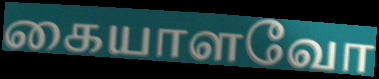
கையாளவோ